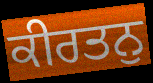
ਕੀਰਤਨੁ